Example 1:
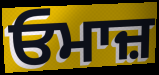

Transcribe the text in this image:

ਓਮਾਜ਼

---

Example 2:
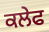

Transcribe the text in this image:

ਕਲੇਫ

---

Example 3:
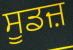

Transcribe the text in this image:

ਸੂਡਜ਼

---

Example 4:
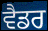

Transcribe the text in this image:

ਵੈਡਰ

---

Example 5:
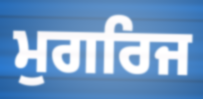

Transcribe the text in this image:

ਮੁਗਰਿਜ